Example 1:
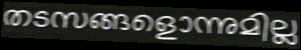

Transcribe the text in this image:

തടസങ്ങളൊന്നുമില്ല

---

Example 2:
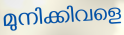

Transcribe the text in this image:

മുനിക്കിവളെ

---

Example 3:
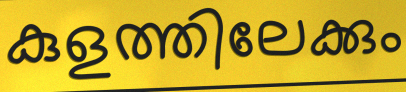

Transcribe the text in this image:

കുളത്തിലേക്കും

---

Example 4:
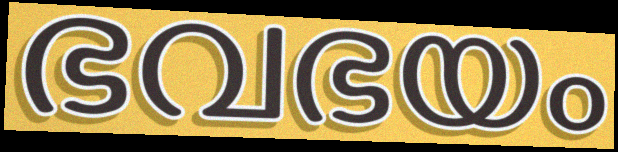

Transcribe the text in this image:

ഭവഭയം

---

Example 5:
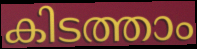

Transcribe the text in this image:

കിടത്താം